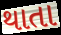
થાતા